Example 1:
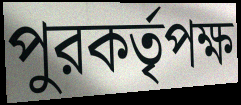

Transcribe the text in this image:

পুরকর্তৃপক্ষ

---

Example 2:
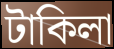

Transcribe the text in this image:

টাকিলা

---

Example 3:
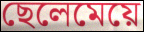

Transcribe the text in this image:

ছেলেমেয়ে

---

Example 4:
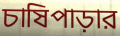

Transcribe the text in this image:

চাষিপাড়ার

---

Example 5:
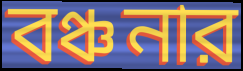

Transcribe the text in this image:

বঞ্চনার